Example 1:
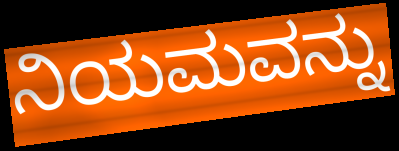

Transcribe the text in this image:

ನಿಯಮವನ್ನು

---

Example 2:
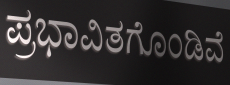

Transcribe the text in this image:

ಪ್ರಭಾವಿತಗೊಂಡಿವೆ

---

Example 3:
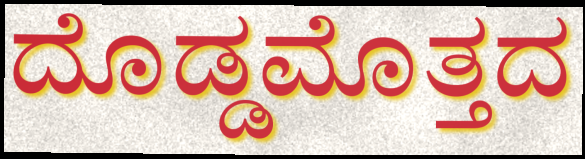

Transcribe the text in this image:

ದೊಡ್ಡಮೊತ್ತದ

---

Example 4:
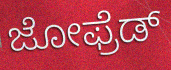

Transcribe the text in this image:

ಜೋಫ್ರೆಡ್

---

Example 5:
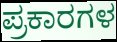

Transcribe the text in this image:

ಪ್ರಕಾರಗಳ